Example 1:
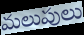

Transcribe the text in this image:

మలుపులు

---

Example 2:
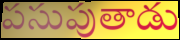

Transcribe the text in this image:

పసుపుతాడు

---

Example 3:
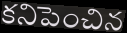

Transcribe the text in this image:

కనిపెంచిన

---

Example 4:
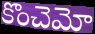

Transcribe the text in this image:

కొంచెమో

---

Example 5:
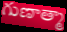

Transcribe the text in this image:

గుణాత్మా